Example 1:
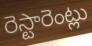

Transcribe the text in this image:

రెస్టారెంట్లు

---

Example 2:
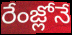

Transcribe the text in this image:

రేంజ్లోనే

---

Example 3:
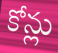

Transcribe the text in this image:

కోన్లు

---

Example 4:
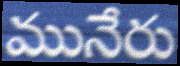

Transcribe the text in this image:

మునేరు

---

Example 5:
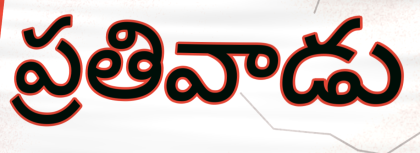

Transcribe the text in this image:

ప్రతివాడు